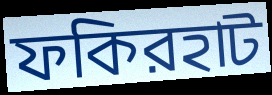
ফকিরহাট